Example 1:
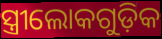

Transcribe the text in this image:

ସ୍ତ୍ରୀଲୋକଗୁଡ଼ିକ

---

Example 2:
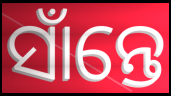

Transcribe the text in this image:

ସାଁନ୍ତେ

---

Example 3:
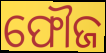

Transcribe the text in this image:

ଫୌଜ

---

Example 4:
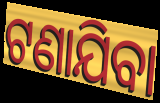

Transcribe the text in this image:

ଟଣାଯିବା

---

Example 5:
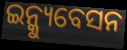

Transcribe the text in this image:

ଇନ୍କ୍ୟୁବେସନ